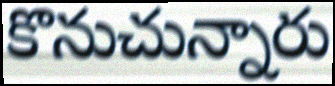
కొనుచున్నారు